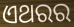
ଏଥରର